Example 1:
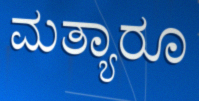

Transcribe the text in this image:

ಮತ್ಯಾರೂ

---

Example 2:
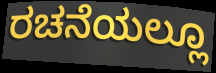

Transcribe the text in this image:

ರಚನೆಯಲ್ಲೂ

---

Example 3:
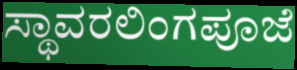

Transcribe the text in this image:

ಸ್ಥಾವರಲಿಂಗಪೂಜೆ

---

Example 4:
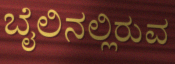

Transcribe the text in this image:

ಬೈಲಿನಲ್ಲಿರುವ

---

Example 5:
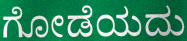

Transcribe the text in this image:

ಗೋಡೆಯದು